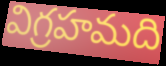
విగ్రహమది